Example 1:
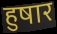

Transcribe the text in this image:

हुषार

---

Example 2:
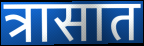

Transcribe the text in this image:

त्रासात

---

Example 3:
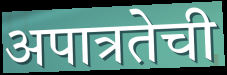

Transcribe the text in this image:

अपात्रतेची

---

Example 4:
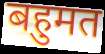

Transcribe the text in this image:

बहुमत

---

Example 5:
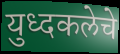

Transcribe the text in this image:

युध्दकलेचे